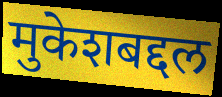
मुकेशबद्दल